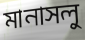
মানাসলু